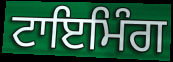
ਟਾਇਮਿੰਗ